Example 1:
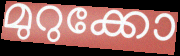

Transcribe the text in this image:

മുറുക്കോ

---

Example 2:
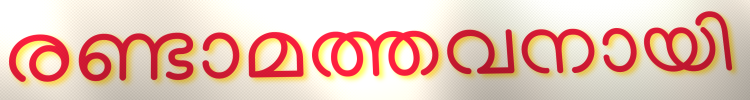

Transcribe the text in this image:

രണ്ടാമത്തവനായി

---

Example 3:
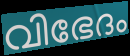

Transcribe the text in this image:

വിഭേദം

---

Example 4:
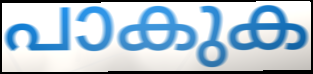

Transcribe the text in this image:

പാകുക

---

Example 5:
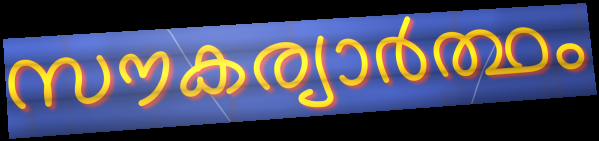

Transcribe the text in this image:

സൗകര്യാർത്ഥം